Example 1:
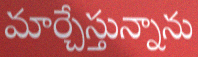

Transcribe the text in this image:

మార్చేస్తున్నాను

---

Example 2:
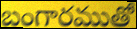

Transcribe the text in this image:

బంగారముతో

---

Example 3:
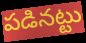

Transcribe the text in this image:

పడినట్టు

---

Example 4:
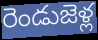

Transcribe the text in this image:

రెండుజెళ్ల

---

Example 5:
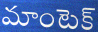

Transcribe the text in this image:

మాంటెక్